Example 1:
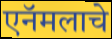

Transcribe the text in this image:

एनॅमलाचे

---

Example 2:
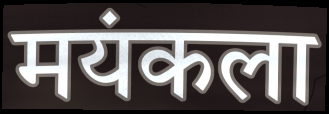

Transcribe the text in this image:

मयंकला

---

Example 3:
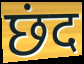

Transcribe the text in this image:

छंद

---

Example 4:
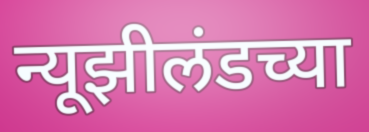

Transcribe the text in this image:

न्यूझीलंडच्या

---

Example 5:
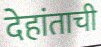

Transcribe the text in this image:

देहांताची